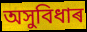
অসুবিধাৰ